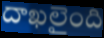
దాఖలైంది